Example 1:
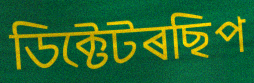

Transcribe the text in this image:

ডিক্টেটৰছিপ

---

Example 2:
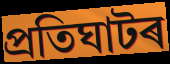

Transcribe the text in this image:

প্ৰতিঘাটৰ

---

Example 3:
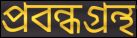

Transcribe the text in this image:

প্ৰবন্ধগ্ৰন্থ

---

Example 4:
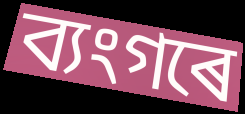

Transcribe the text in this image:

ব্যংগৰে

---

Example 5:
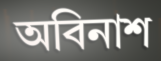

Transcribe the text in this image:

অবিনাশ